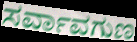
ಸರ್ವಾವಗುಣ